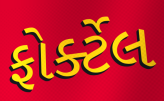
ફોર્ક્ટેલ